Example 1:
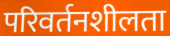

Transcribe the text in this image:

परिवर्तनशीलता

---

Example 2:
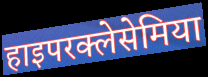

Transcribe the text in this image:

हाइपरक्लेसेमिया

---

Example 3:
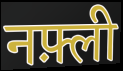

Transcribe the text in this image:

नफ़्ली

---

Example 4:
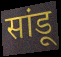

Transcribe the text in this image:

सांडू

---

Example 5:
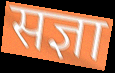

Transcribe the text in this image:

सज्ञा